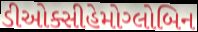
ડીઓક્સીહેમોગ્લોબિન